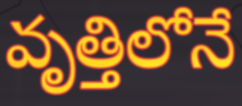
వృత్తిలోనే